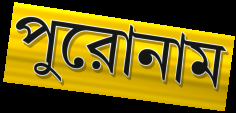
পুরোনাম